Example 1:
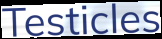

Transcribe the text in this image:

Testicles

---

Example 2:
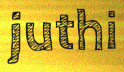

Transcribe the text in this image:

juthi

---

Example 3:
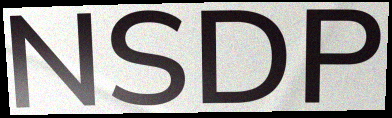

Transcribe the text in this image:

NSDP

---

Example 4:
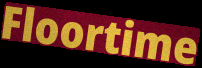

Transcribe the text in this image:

Floortime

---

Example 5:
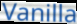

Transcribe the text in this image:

Vanilla